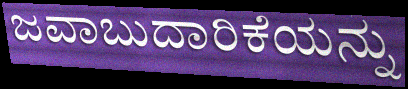
ಜವಾಬುದಾರಿಕೆಯನ್ನು